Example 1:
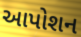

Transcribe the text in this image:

આપોશન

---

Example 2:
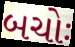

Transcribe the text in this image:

બચોઃ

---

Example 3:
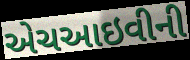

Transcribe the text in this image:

એચઆઇવીની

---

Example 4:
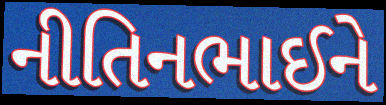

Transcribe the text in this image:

નીતિનભાઈને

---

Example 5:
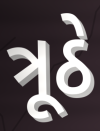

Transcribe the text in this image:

ત્રૂઠે